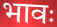
भावः